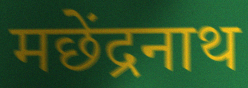
मछेंद्रनाथ